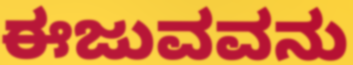
ಈಜುವವನು